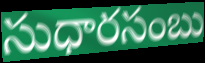
సుధారసంబు